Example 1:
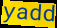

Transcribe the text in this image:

yadd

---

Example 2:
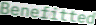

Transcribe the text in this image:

Benefitted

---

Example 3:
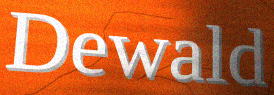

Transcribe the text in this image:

Dewald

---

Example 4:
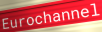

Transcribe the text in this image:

Eurochannel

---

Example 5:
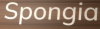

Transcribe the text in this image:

Spongia